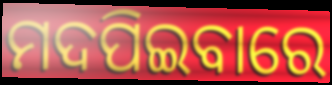
ମଦପିଇବାରେ